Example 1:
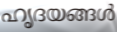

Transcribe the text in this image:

ഹൃദയങ്ങൾ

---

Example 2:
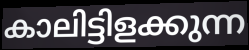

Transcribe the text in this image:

കാലിട്ടിളക്കുന്ന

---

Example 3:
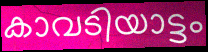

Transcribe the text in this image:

കാവടിയാട്ടം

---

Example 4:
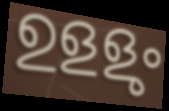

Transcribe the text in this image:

ഉളളും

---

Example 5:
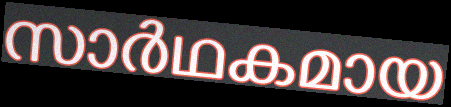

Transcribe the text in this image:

സാർഥകമായ